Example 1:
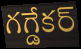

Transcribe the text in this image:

గగ్డేకర్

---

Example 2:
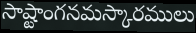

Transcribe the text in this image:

సాష్టాంగనమస్కారములు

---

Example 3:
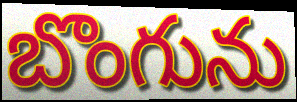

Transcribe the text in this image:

బొంగును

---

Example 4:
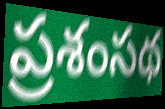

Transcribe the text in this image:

ప్రశంసథ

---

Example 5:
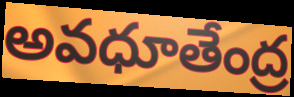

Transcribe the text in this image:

అవధూతేంద్ర